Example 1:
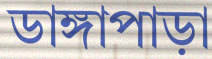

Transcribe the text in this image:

ডাঙ্গাপাড়া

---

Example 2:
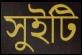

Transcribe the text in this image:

সুইটি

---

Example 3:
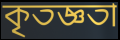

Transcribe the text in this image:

কৃতজ্ঞতা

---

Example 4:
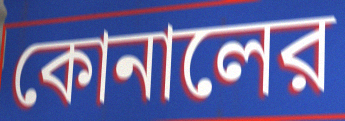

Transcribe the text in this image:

কোনালের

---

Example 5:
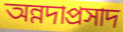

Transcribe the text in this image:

অন্নদাপ্রসাদ